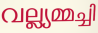
വല്ല്യമ്മച്ചി